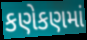
કણેકણમાં